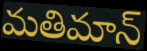
మతిమాన్